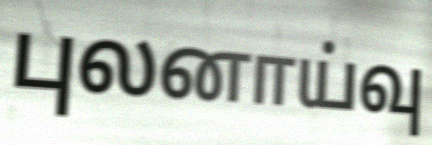
புலனாய்வு